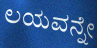
ಲಯವನ್ನೇ